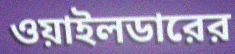
ওয়াইলডারের